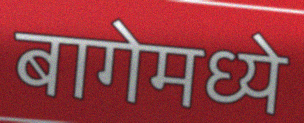
बागेमध्ये